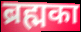
ब्रह्मका